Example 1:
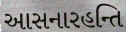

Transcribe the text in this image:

આસનારહન્તિ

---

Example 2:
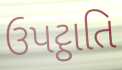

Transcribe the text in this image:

ઉપટ્ઠાતિ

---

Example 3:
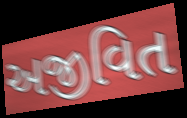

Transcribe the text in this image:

અજીવિત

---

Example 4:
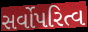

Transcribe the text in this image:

સર્વોપરિત્વ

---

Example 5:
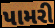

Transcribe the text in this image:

પામરી